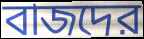
বাজদের